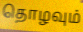
தொழவும்